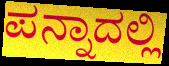
ಪನ್ನಾದಲ್ಲಿ